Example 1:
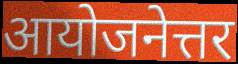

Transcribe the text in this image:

आयोजनेत्तर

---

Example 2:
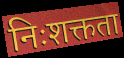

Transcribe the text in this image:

निःशक्तता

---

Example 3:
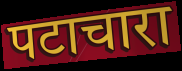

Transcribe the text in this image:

पटाचारा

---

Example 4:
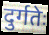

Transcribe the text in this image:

दुर्गतेः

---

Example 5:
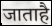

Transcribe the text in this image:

जाताहै